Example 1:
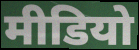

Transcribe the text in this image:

मीडियो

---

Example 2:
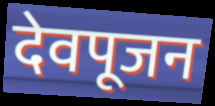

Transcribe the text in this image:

देवपूजन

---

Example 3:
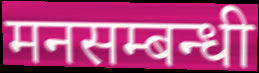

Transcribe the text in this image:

मनसम्बन्धी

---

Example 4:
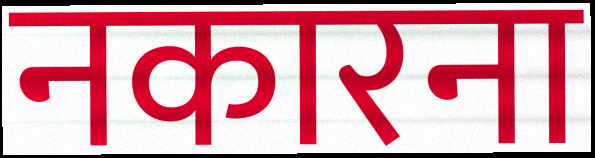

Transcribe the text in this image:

नकारना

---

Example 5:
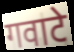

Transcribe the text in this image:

गवाटे